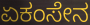
ಏಕಂಸೇನ